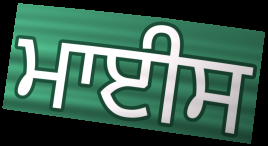
ਮਾਈਸ